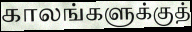
காலங்களுக்குத்